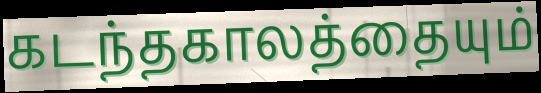
கடந்தகாலத்தையும்